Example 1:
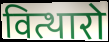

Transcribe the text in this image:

वित्थारो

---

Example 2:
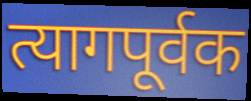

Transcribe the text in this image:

त्यागपूर्वक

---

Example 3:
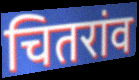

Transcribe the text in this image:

चितरांव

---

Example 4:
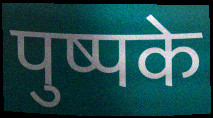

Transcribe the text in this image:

पुष्पके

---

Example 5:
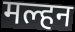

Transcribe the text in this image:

मल्हन